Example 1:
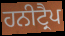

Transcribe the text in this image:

ਹਨੀਟ੍ਰੈਪ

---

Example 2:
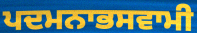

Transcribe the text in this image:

ਪਦਮਨਾਭਸਵਾਮੀ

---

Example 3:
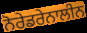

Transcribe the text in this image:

ਨੋਰੇਡਰੇਨਾਲੀਨ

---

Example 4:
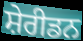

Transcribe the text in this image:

ਸ਼ੇਰੀਡਨ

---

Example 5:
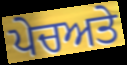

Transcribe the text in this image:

ਪੇਚਅਤੇ